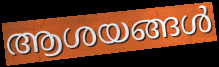
ആശയങ്ങൾ